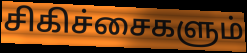
சிகிச்சைகளும்